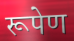
रूपेण